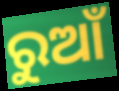
ରୁଆଁ